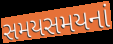
સમયસમયનાં